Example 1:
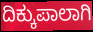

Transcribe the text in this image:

ದಿಕ್ಕುಪಾಲಾಗಿ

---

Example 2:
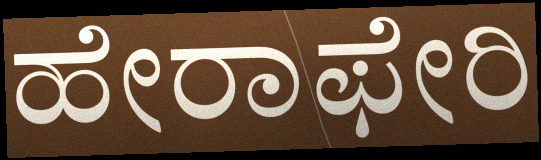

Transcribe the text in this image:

ಹೇರಾಫೇರಿ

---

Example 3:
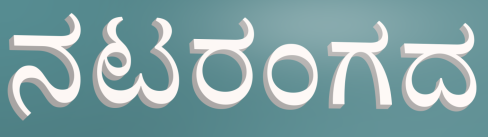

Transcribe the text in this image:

ನಟರಂಗದ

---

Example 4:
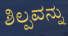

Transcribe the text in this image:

ಶಿಲ್ಪವನ್ನು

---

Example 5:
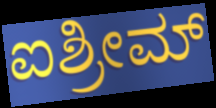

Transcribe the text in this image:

ಐಶ್ರೀಮ್